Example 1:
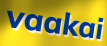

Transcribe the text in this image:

vaakai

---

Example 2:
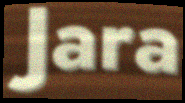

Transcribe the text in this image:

Jara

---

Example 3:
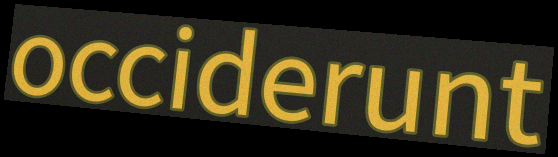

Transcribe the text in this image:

occiderunt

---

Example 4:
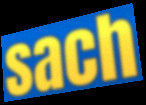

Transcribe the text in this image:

sach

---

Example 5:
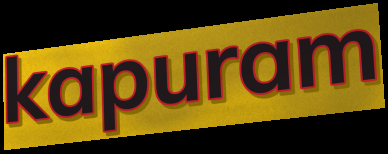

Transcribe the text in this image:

kapuram